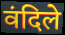
वंदिले